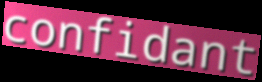
confidant